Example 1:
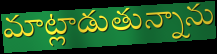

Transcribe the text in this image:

మాట్లాడుతున్నాను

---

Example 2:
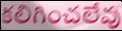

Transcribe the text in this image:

కలిగించలేవు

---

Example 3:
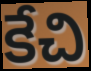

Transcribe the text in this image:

కేచి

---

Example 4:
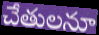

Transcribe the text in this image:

చేతులనూ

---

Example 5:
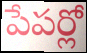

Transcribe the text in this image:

పేపర్లో